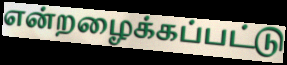
என்றழைக்கப்பட்டு